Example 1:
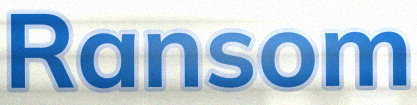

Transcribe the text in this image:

Ransom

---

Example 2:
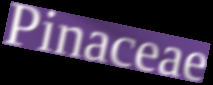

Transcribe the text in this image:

Pinaceae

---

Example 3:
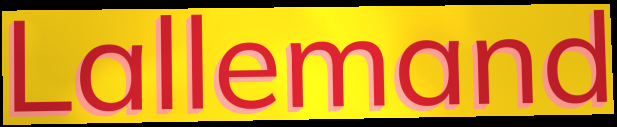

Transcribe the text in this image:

Lallemand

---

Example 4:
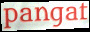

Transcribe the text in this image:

pangat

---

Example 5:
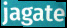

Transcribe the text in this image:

jagate